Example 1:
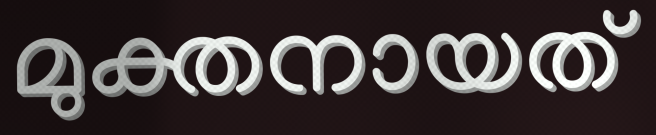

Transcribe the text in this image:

മുക്തനായത്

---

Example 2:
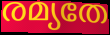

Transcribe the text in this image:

രമ്യതേ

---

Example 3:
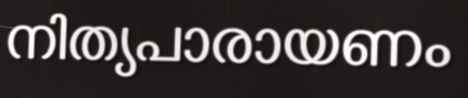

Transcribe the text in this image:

നിത്യപാരായണം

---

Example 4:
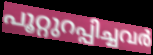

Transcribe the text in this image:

പൂറ്റുറപ്പിച്ചവർ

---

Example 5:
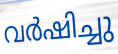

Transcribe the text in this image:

വർഷിച്ചു